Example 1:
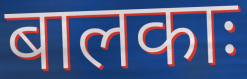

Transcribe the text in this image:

बालकाः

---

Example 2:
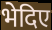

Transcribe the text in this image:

भेदिए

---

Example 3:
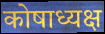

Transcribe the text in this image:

कोषाध्यक्ष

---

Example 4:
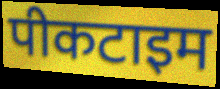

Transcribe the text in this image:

पीकटाइम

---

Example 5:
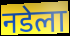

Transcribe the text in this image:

नडेला